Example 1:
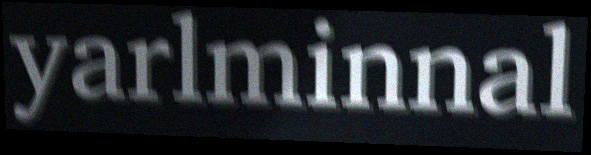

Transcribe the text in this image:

yarlminnal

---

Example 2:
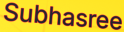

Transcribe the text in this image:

Subhasree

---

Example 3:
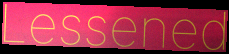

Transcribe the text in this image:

Lessened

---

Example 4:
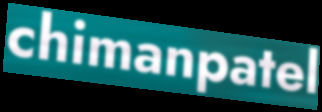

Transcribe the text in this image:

chimanpatel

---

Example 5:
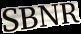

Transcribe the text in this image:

SBNR